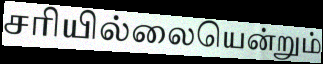
சரியில்லையென்றும்